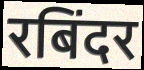
रबिंदर